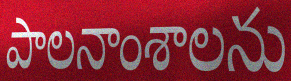
పాలనాంశాలను